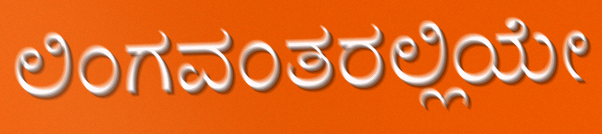
ಲಿಂಗವಂತರಲ್ಲಿಯೇ